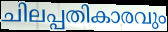
ചിലപ്പതികാരവും